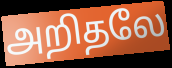
அறிதலே